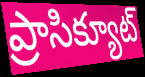
ప్రాసిక్యూట్